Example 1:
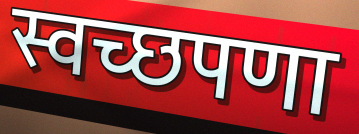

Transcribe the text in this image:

स्वच्छपणा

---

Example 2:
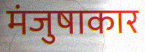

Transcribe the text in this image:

मंजुषाकार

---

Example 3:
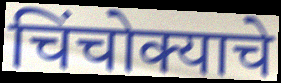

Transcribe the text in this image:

चिंचोक्याचे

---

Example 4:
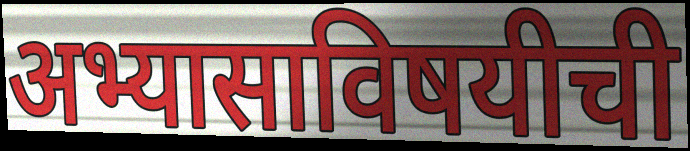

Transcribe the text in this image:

अभ्यासाविषयीची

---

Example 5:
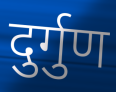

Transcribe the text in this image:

दुर्गुण